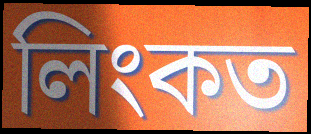
লিংকত